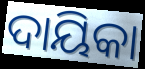
ଦାୟିକା